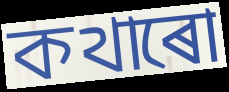
কথাৰো